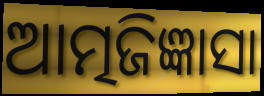
ଆତ୍ମଜିଜ୍ଞାସା